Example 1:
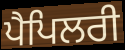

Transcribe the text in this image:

ਪੈਪਿਲਰੀ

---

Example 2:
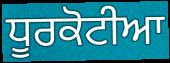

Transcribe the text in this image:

ਧੂਰਕੋਟੀਆ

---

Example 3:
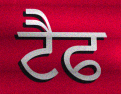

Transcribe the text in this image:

ਟੈਫ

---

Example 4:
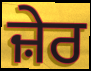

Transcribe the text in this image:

ਜ਼ੇਰ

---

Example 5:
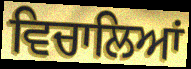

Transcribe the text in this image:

ਵਿਚਾਲਿਆਂ